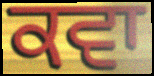
ਕਵਾ